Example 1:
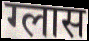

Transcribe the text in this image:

ग्लास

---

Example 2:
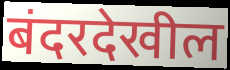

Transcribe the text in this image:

बंदरदेखील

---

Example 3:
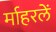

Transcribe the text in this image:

र्माहरलें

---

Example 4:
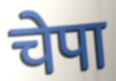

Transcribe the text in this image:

चेपा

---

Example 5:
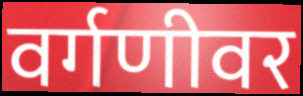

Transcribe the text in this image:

वर्गणीवर